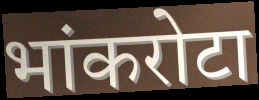
भांकरोटा